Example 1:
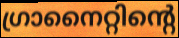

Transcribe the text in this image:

ഗ്രാനൈറ്റിന്റെ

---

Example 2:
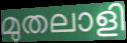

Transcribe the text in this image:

മുതലാളി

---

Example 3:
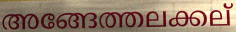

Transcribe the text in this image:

അങ്ങേത്തലക്കല്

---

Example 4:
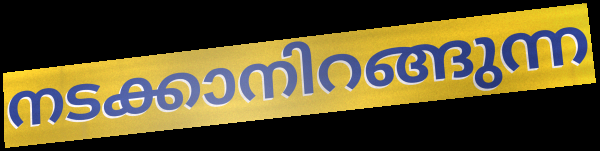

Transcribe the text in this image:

നടക്കാനിറങ്ങുന്ന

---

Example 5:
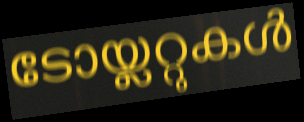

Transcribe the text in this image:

ടോയ്ലറ്റുകൾ